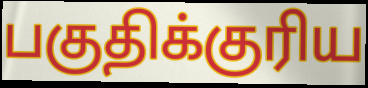
பகுதிக்குரிய